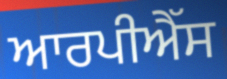
ਆਰਪੀਐੱਸ